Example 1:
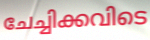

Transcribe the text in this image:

ചേച്ചിക്കവിടെ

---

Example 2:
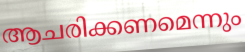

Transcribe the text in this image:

ആചരിക്കണമെന്നും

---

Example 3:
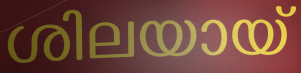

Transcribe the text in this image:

ശിലയായ്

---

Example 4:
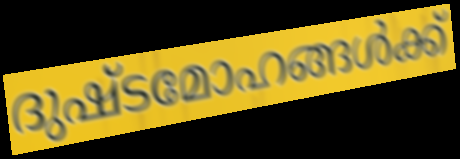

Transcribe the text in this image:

ദുഷ്ടമോഹങ്ങൾക്ക്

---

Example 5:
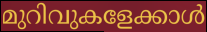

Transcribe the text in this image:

മുറിവുകളേക്കാൾ